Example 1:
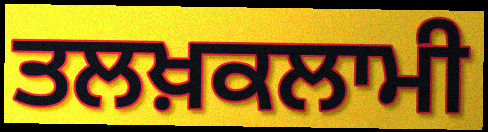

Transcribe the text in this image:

ਤਲਖ਼ਕਲਾਮੀ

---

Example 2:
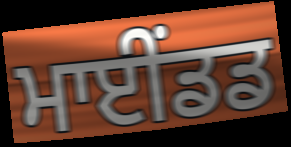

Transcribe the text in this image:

ਮਾਈਂਡਡ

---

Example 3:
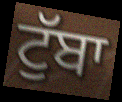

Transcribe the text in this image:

ਟੁੱਬਾ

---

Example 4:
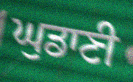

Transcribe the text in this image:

ਘੁਡਾਣੀ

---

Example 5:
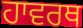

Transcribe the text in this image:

ਹਾਵਰਥ